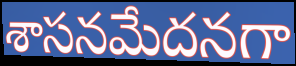
శాసనమేదనగా